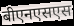
बीएनएसएस